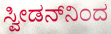
ಸ್ವೀಡನ್‌ನಿಂದ